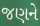
જણને